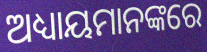
ଅଧ୍ୟାୟମାନଙ୍କରେ